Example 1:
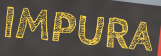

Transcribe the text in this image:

IMPURA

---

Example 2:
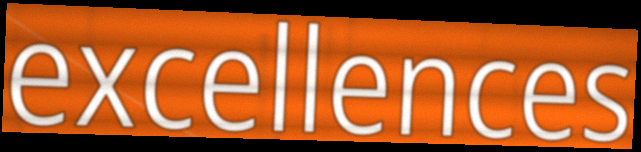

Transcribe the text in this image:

excellences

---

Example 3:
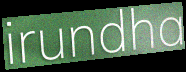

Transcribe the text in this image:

irundha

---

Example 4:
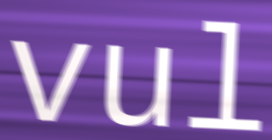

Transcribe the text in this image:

vul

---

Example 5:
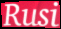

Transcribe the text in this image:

Rusi